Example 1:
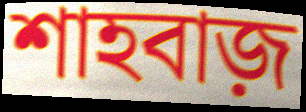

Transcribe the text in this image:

শাহবাজ়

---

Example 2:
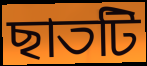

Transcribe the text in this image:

ছাতটি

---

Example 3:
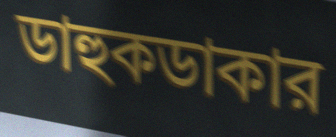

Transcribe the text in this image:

ডাহুকডাকার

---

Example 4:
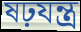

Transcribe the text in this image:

ষঢ়যন্ত্র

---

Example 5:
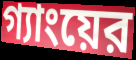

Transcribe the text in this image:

গ্যাংয়ের